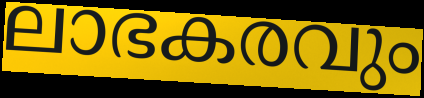
ലാഭകരവും